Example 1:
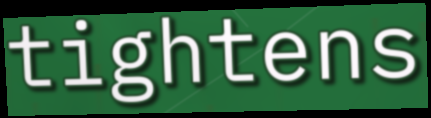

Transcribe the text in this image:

tightens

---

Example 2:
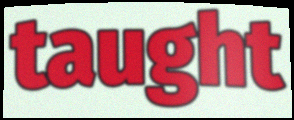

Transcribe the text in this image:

taught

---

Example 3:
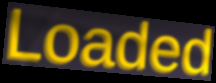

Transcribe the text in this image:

Loaded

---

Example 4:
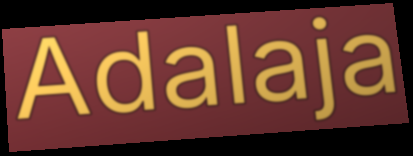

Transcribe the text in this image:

Adalaja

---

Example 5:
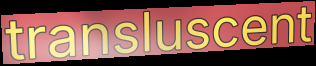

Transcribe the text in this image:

transluscent